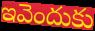
ఇవెందుకు